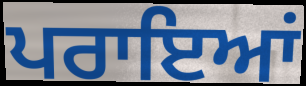
ਪਰਾਇਆਂ